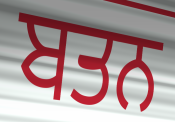
ਬਤਨ